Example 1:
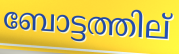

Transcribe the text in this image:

ബോട്ടത്തില്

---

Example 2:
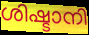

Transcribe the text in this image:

ശിഷ്ടാനി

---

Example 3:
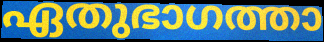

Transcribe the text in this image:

ഏതുഭാഗത്താ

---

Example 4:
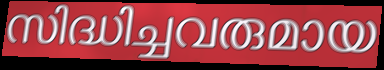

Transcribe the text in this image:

സിദ്ധിച്ചവരുമായ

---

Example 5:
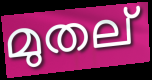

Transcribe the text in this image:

മുതല്